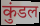
कुंडल